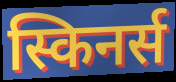
स्किनर्स